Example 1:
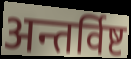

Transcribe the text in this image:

अन्तर्विष्ट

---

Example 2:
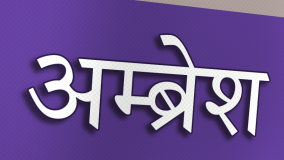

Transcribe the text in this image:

अम्ब्रेश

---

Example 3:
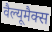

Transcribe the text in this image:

वैल्यूमैक्स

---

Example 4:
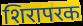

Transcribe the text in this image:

शिरापरक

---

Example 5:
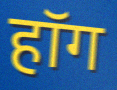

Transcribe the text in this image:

हॉग